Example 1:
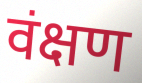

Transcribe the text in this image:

वंक्षण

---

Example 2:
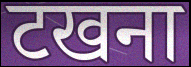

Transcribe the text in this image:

टखना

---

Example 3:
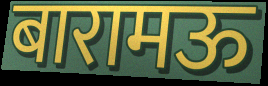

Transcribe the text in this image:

बारामऊ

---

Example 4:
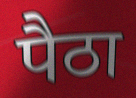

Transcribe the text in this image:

पैठा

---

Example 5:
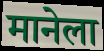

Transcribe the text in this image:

मानेला